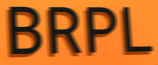
BRPL